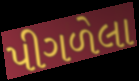
પીગળેલા